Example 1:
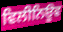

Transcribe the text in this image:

ਵਿਲੀਨਿਊਵ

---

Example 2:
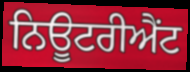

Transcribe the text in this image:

ਨਿਊਟਰੀਐਂਟ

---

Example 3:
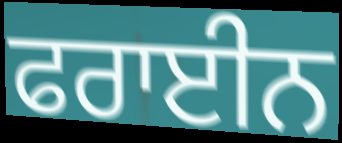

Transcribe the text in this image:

ਫਰਾਈਨ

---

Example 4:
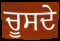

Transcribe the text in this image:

ਚੂਸਦੇ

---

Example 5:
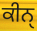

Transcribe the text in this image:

ਕੀਨੑ